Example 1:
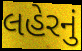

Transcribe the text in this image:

લહેરનું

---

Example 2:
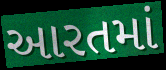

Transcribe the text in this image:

આરતમાં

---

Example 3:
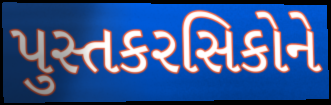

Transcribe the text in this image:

પુસ્તકરસિકોને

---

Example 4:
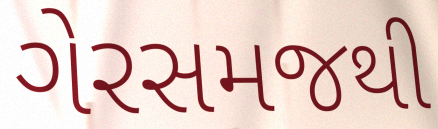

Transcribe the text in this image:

ગેરસમજથી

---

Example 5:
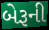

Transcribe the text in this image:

બેરૂની